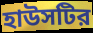
হাউসটির